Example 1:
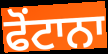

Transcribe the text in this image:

ਫੋਂਟਾਨਾ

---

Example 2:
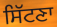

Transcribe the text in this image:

ਸਿੱਟਣਾ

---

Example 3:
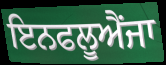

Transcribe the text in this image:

ਇਨਫਲੂਐਂਜਾ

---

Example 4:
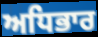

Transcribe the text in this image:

ਅਧਿਭਾਰ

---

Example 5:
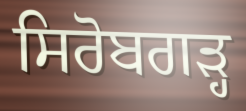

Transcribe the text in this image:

ਸਿਰੋਬਗੜ੍ਹ